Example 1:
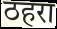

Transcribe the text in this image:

ठहरा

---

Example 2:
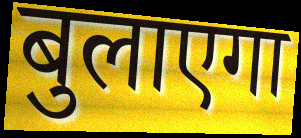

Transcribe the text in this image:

बुलाएगा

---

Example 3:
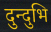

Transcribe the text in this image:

दुन्दुभि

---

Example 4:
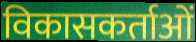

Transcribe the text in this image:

विकासकर्ताओं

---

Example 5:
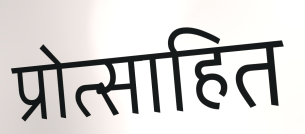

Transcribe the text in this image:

प्रोत्साहित